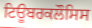
ਟਿਊਬਰਕਲੌਸਿਸ